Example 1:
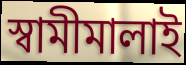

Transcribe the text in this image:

স্বামীমালাই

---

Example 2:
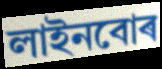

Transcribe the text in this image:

লাইনবোৰ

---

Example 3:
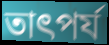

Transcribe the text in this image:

তাৎপৰ্য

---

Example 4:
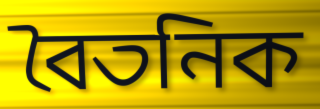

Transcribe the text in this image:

বৈতনিক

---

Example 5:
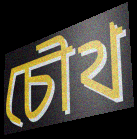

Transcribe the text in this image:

চৌথ